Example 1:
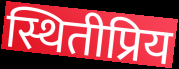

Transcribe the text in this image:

स्थितीप्रिय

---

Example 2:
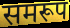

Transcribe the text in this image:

समरूप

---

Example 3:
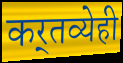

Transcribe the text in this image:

कर्तव्येही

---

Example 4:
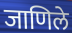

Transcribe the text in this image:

जाणिले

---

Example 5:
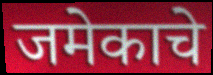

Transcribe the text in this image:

जमेकाचे